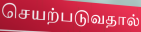
செயற்படுவதால்